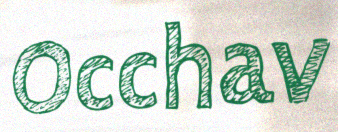
Occhav